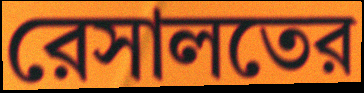
রেসালতের